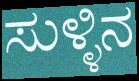
ಸುಳ್ಳಿನ